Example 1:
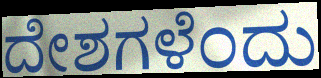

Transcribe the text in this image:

ದೇಶಗಳೆಂದು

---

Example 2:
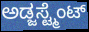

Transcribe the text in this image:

ಅಡ್ಜಸ್ಟ್ಮೆಂಟ್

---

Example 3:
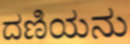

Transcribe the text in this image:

ದಣಿಯನು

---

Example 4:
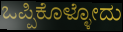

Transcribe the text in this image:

ಒಪ್ಪಿಕೊಳ್ಳೋದು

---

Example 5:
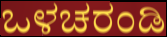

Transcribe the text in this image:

ಒಳಚರಂಡಿ